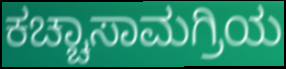
ಕಚ್ಚಾಸಾಮಗ್ರಿಯ